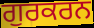
ਗੁਰਕਰਨ